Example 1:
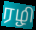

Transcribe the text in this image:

ரழி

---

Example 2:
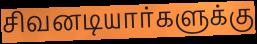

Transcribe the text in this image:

சிவனடியார்களுக்கு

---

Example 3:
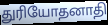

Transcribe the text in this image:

துரியோதனாதி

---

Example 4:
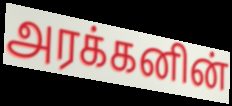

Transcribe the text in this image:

அரக்கனின்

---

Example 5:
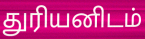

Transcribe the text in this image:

துரியனிடம்